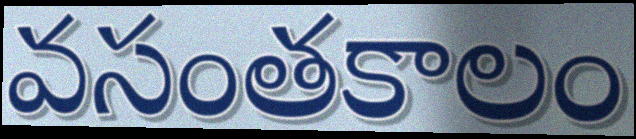
వసంతకాలం